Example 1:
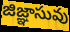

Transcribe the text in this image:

జిజ్ఞాసువు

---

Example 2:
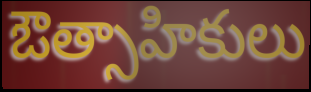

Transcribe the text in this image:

ఔత్సాహికులు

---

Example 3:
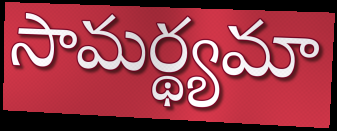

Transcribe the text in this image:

సామర్థ్యమా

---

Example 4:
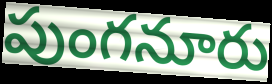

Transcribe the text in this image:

పుంగనూరు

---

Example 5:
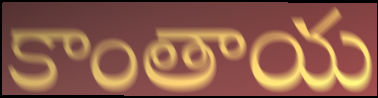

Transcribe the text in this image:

కాంతాయ